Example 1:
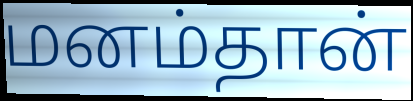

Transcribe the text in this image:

மனம்தான்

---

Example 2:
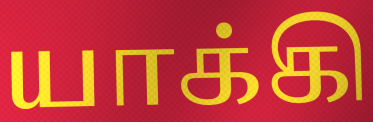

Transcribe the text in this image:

யாக்கி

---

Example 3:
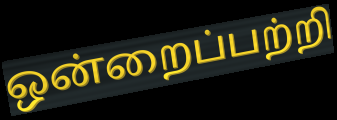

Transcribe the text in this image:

ஒன்றைப்பற்றி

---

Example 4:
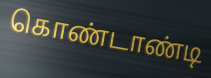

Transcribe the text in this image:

கொண்டாண்டி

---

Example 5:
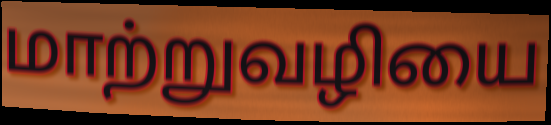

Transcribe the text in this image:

மாற்றுவழியை